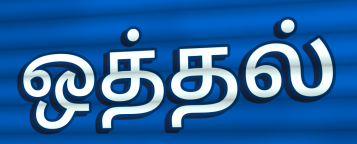
ஒத்தல்